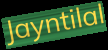
Jayntilal